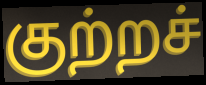
குற்றச்